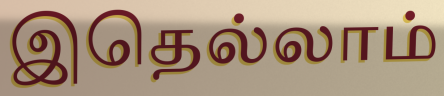
இதெல்லாம்